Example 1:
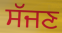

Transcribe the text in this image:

ਸੱਜਣ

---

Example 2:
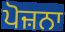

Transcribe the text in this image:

ਪੋਜ਼ਨਾ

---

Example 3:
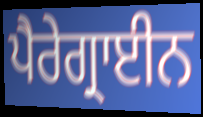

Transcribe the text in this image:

ਪੈਰੇਗ੍ਰਾਈਨ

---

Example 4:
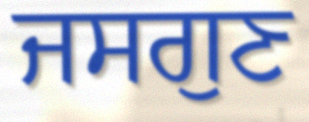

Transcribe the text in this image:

ਜਸਗੁਣ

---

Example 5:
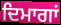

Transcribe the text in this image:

ਦਿਮਾਗਾਂ